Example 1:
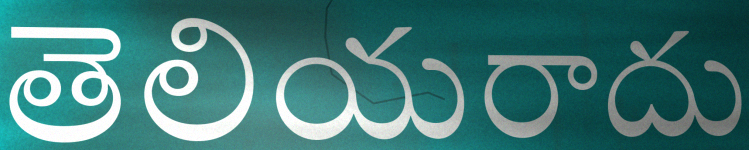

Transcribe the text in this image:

తెలియరాదు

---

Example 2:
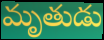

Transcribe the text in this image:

మృతుడు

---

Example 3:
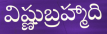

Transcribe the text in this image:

విష్ణుబ్రహ్మాది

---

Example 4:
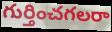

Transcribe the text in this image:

గుర్తించగలరా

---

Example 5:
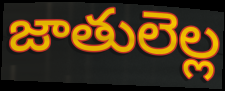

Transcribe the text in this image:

జాతులెల్ల